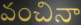
వంచినా